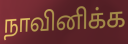
நாவினிக்க